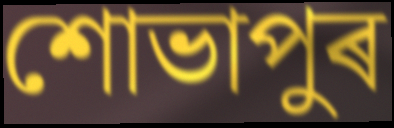
শোভাপুৰ